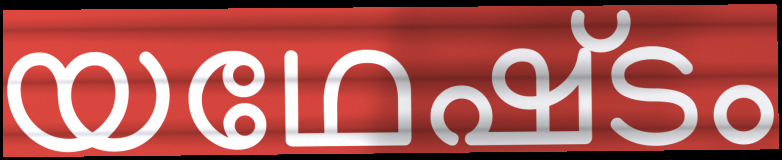
യഥേഷ്‌ടം